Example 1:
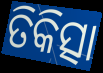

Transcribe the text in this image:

ତିକିତ୍ସା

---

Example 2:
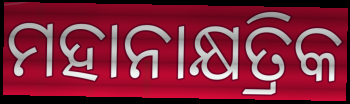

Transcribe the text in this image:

ମହାନାକ୍ଷତ୍ରିକ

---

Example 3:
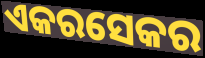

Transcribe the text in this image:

ଏକରସେକର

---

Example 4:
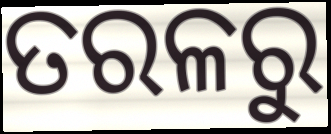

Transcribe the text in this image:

ତରଳରୁ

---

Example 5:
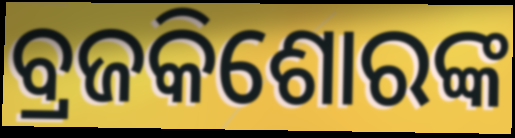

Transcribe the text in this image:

ବ୍ରଜକିଶୋରଙ୍କ